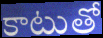
కాటుతో